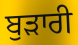
ਬੁੜਾਰੀ